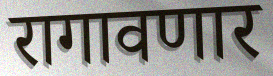
रागावणार